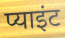
प्याइंट